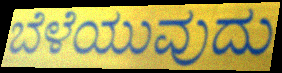
ಬೆಳೆಯುವುದು